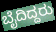
ಬೈದಿದ್ದರು